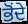
ਭੋਂਦੇ